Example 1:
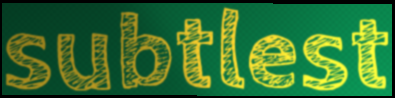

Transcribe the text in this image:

subtlest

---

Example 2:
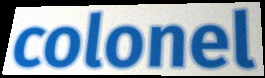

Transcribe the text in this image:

colonel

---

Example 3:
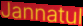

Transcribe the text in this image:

Jannatul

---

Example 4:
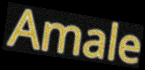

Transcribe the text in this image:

Amale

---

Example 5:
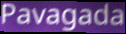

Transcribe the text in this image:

Pavagada